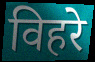
विहरे